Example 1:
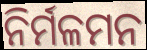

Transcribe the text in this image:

ନିର୍ମଳମନ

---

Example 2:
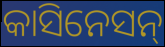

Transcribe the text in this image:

କାସିନେସନ୍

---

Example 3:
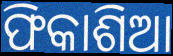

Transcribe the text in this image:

ଫିକାଶିଆ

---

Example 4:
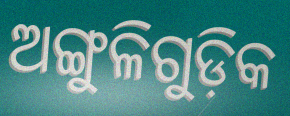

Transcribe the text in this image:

ଅଙ୍ଗୁଳିଗୁଡ଼ିକ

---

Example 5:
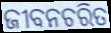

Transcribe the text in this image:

ଜୀବନଚରିତ